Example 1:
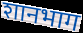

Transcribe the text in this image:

शानभाग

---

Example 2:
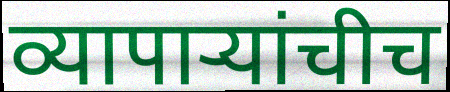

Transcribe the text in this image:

व्यापाऱ्यांचीच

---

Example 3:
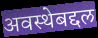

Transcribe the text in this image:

अवस्थेबद्दल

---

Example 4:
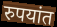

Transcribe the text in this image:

रुपयांत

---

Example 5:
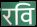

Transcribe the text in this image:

रवि